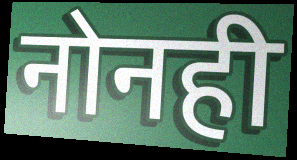
नोनही